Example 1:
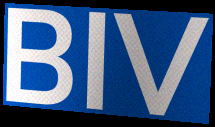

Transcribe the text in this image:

BIV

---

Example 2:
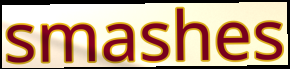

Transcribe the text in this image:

smashes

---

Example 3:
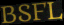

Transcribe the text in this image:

BSFL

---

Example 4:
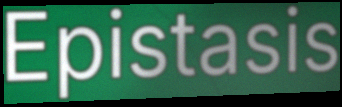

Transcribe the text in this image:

Epistasis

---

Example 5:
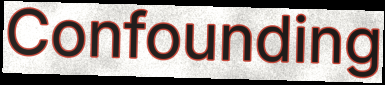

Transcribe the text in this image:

Confounding